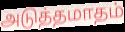
அடுத்தமாதம்